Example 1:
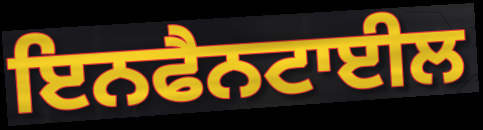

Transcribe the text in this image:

ਇਨਫੈਨਟਾਈਲ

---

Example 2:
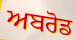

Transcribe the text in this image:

ਅਬਰੋਡ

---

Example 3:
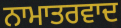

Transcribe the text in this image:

ਨਾਮਾਤਰਵਾਦ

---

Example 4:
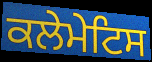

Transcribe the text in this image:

ਕਲੇਮੇਟਿਸ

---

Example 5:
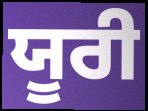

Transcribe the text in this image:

ਯੂਰੀ